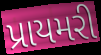
પ્રાયમરી